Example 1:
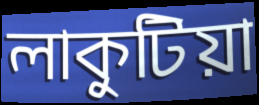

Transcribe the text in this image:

লাকুটিয়া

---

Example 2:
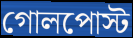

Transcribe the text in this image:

গোলপোস্ট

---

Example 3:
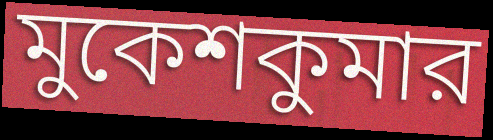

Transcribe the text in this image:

মুকেশকুমার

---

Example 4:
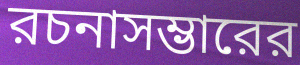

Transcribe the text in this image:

রচনাসম্ভারের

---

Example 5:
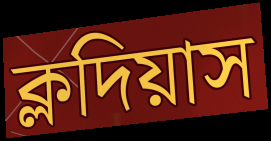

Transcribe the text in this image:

ক্লদিয়াস